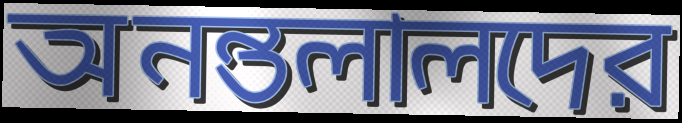
অনন্তলালদের